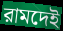
রামদেই